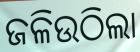
ଜଳିଉଠିଲା